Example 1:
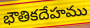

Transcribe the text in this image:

భౌతికదేహము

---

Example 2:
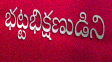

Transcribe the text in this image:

భట్టభిక్షణుడిని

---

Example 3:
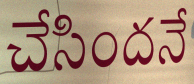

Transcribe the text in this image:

చేసిందనే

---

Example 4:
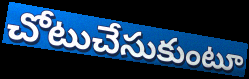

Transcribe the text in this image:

చోటుచేసుకుంటూ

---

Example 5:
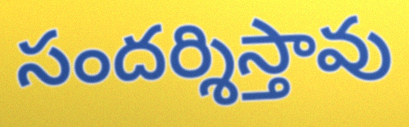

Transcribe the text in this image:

సందర్శిస్తావు